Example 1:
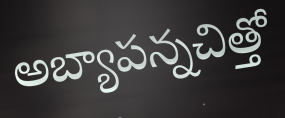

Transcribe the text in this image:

అబ్యాపన్నచిత్తో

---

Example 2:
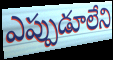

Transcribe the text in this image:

ఎప్పుడూలేని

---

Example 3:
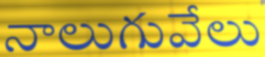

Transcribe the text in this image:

నాలుగువేలు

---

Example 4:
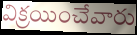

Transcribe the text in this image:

విక్రయించేవారు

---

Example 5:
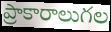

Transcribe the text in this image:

ప్రాకారాలుగల